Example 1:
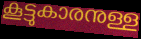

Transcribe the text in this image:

കൂട്ടുകാരനുള്ള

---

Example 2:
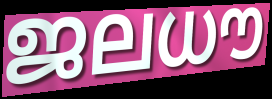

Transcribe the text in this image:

ജലധൗ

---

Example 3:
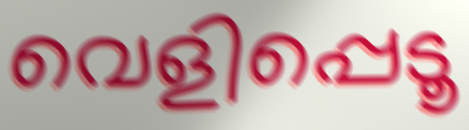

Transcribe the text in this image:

വെളിപ്പെടൂ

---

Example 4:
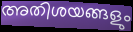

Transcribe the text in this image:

അതിശയങ്ങളും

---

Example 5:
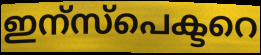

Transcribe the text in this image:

ഇന്സ്പെക്ടറെ